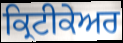
ਕ੍ਰਿਟੀਕੇਅਰ